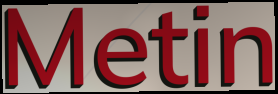
Metin